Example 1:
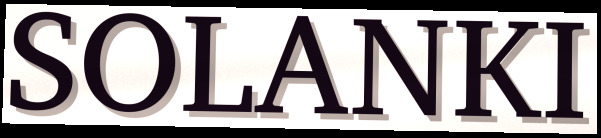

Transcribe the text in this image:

SOLANKI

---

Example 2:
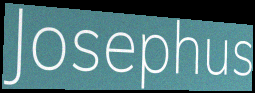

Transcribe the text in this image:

Josephus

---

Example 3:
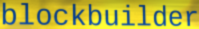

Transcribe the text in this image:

blockbuilder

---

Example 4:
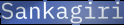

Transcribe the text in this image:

Sankagiri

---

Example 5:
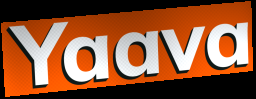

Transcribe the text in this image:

Yaava